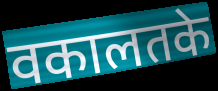
वकालतके